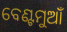
ବେଣ୍ଟମୁଆଁ